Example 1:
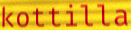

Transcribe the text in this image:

kottilla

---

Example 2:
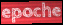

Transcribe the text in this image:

epoche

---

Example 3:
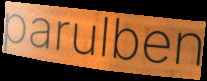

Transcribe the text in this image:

parulben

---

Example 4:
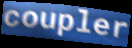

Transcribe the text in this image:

coupler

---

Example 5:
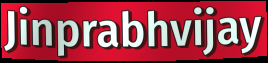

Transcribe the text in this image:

Jinprabhvijay